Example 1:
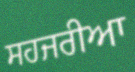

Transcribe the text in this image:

ਸਹਜਰੀਆ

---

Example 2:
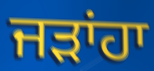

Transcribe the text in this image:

ਜੜਾਂਹਾ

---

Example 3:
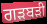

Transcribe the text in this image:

ਗੜਬੜੀ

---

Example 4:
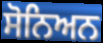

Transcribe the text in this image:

ਸੋਨਿਅਨ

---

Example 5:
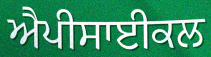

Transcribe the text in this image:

ਐਪੀਸਾਈਕਲ